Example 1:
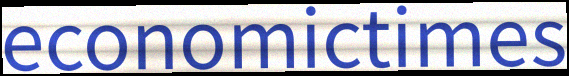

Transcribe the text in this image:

economictimes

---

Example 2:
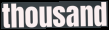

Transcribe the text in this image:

thousand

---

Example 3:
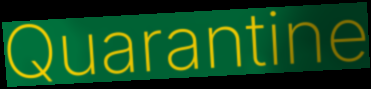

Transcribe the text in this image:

Quarantine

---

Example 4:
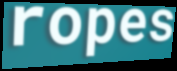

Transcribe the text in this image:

ropes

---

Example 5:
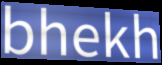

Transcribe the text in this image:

bhekh